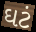
ઘટં